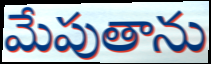
మేపుతాను